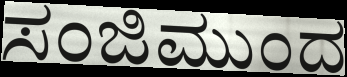
ಸಂಜಿಮುಂದ